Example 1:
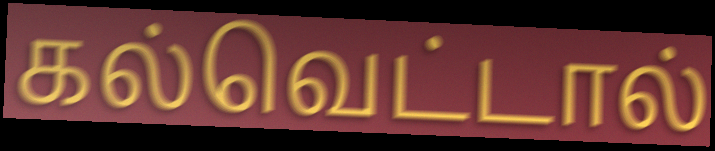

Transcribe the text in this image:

கல்வெட்டால்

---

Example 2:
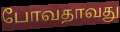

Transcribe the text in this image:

போவதாவது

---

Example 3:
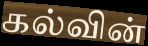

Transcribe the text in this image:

கல்வின்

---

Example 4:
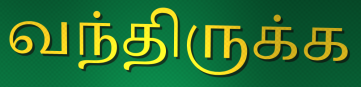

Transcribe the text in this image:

வந்திருக்க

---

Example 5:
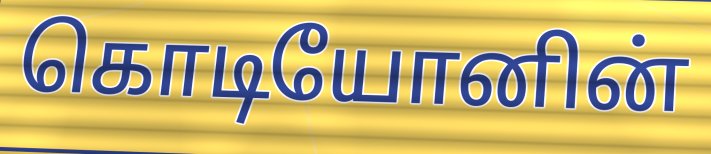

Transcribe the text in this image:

கொடியோனின்